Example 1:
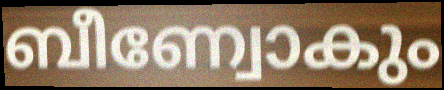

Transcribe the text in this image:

ബീണ്വോകും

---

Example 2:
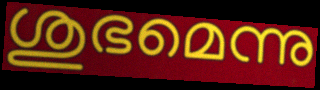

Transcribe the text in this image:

ശുഭമെന്നു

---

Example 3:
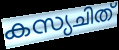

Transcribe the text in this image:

കസ്യചിത്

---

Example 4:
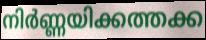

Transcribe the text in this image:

നിർണ്ണയിക്കത്തക്ക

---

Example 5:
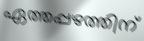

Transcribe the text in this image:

ഏത്തപ്പഴത്തിന്